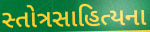
સ્તોત્રસાહિત્યના